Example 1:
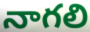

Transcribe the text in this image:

నాగలి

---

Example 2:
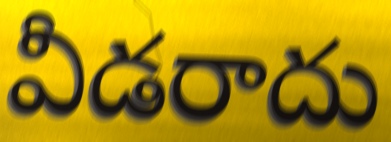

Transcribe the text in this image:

వీడరాదు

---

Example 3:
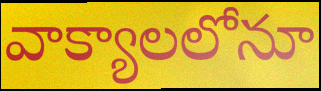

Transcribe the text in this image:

వాక్యాలలోనూ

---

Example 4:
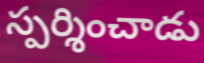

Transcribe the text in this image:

స్పర్శించాడు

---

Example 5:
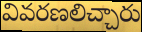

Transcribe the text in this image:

వివరణలిచ్చారు